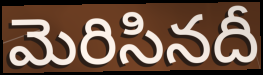
మెరిసినదీ